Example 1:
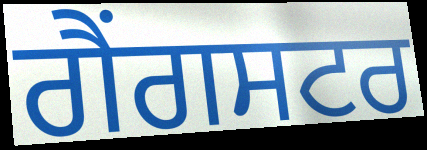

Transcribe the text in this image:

ਗੈਂਗਸਟਰ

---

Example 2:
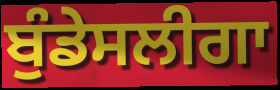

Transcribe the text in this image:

ਬੁੰਡੇਸਲੀਗਾ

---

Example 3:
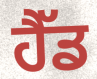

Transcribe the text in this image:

ਹੈੱਡ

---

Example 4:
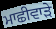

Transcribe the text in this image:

ਮਾਛੀਵਾੜੇ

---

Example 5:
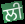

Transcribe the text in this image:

ਲੀ